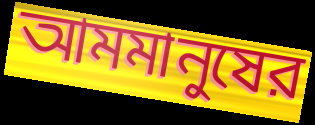
আমমানুষের